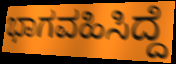
ಭಾಗವಹಿಸಿದ್ದೆ